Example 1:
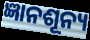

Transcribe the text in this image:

ଜ୍ଞାନଶୂନ୍ୟ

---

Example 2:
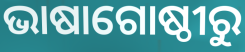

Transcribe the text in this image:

ଭାଷାଗୋଷ୍ଠୀରୁ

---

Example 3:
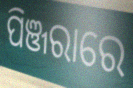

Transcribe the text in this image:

ପିଞ୍ଜରାରେ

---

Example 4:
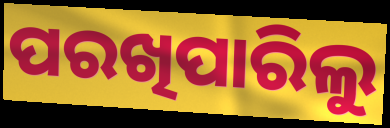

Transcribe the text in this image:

ପରଖିପାରିଲୁ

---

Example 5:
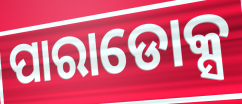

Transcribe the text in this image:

ପାରାଡୋକ୍ସ